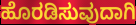
ಹೊರಡಿಸುವುದಾಗಿ